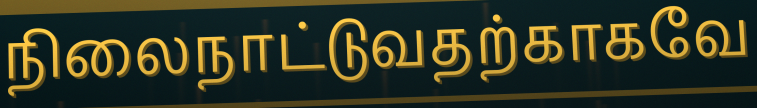
நிலைநாட்டுவதற்காகவே